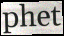
phet